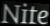
Nite